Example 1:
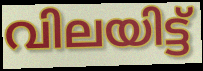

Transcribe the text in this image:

വിലയിട്ട്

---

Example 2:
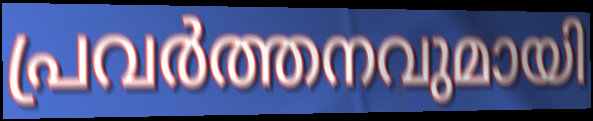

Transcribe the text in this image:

പ്രവർത്തനവുമായി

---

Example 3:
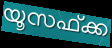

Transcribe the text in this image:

യൂസഫ്ക്ക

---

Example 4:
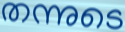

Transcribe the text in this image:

തന്നുടെ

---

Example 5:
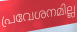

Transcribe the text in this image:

പ്രവേശനമില്ല